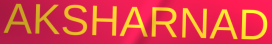
AKSHARNAD